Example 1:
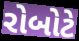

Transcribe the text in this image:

રોબોટે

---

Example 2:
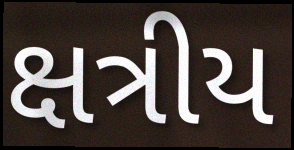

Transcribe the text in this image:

ક્ષત્રીય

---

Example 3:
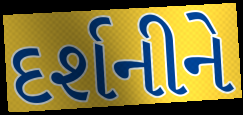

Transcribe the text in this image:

દર્શનીને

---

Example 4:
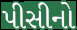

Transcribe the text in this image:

પીસીનો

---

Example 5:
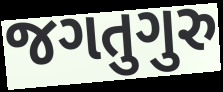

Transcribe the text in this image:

જગતુગુરુ